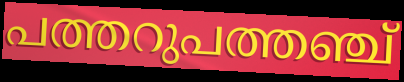
പത്തറുപത്തഞ്ച്